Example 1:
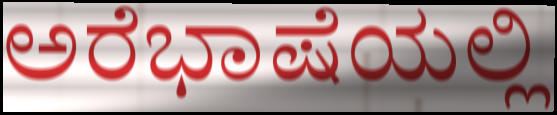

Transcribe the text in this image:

ಅರೆಭಾಷೆಯಲ್ಲಿ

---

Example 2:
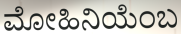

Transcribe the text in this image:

ಮೋಹಿನಿಯೆಂಬ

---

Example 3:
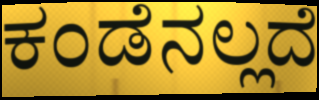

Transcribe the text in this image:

ಕಂಡೆನಲ್ಲದೆ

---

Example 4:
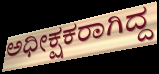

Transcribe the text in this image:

ಅಧೀಕ್ಷಕರಾಗಿದ್ದ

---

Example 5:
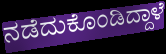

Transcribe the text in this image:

ನಡೆದುಕೊಂಡಿದ್ದಾಳೆ